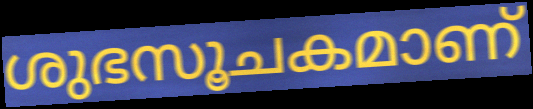
ശുഭസൂചകമാണ്